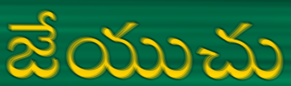
జేయుచు